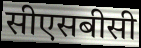
सीएसबीसी